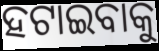
ହଟାଇବାକୁ